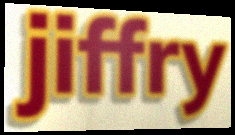
jiffry